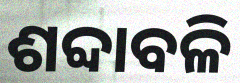
ଶବ୍ଦାବଳି